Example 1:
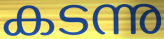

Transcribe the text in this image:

കടന്നു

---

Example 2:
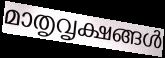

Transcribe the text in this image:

മാതൃവൃക്ഷങ്ങൾ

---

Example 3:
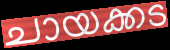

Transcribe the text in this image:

ചായക്കട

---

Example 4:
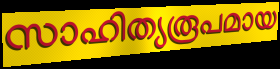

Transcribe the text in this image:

സാഹിത്യരൂപമായ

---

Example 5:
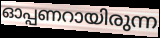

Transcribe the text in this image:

ഓപ്പണറായിരുന്ന